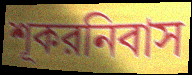
শূকরনিবাস